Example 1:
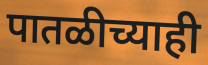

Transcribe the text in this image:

पातळीच्याही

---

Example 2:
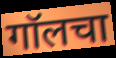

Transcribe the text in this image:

गॉलचा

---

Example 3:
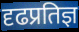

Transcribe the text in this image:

दृढप्रतिज्ञ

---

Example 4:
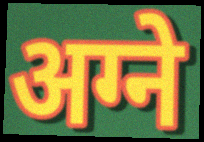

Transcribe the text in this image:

अग्ने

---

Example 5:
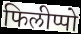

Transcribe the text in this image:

फिलीप्पो